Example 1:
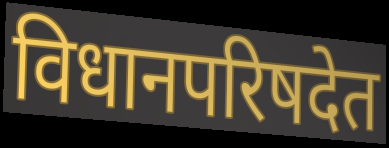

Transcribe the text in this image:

विधानपरिषदेत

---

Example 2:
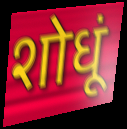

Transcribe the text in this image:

शोधूं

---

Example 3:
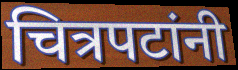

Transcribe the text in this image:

चित्रपटांनी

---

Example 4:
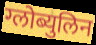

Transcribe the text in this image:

ग्लोब्युलिन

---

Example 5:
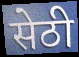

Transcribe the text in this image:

सेठी